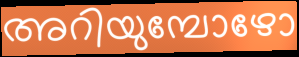
അറിയുമ്പോഴോ